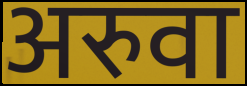
अरुवा